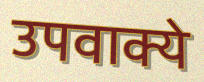
उपवाक्ये